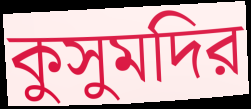
কুসুমদির